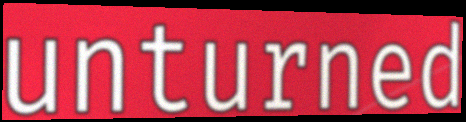
unturned